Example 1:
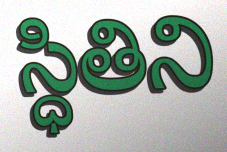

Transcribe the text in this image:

స్ధితిని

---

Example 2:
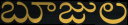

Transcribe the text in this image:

బూజుల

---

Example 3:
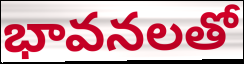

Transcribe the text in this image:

భావనలతో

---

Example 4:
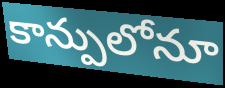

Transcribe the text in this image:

కాన్పులోనూ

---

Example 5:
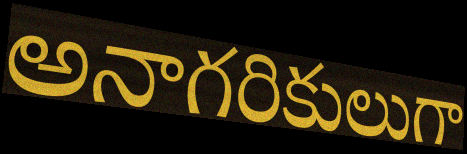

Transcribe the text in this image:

అనాగరికులుగా